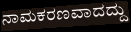
ನಾಮಕರಣವಾದದ್ದು